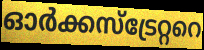
ഓർക്കസ്ട്രേറ്ററെ